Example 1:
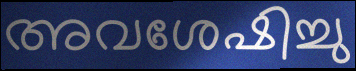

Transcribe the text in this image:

അവശേഷിച്ചു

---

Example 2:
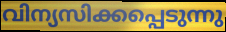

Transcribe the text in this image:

വിന്യസിക്കപ്പെടുന്നു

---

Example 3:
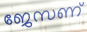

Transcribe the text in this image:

ജേസണ്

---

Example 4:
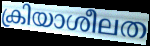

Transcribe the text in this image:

ക്രിയാശീലത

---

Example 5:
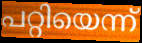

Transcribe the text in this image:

പറ്റിയെന്ന്